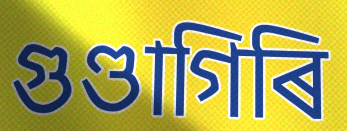
গুণ্ডাগিৰি